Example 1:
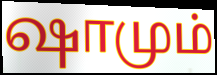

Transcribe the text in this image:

ஷாமும்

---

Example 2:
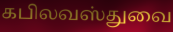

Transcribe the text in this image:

கபிலவஸ்துவை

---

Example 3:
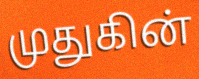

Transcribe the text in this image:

முதுகின்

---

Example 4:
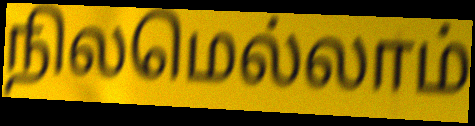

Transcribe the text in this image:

நிலமெல்லாம்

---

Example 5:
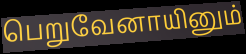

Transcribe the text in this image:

பெறுவேனாயினும்